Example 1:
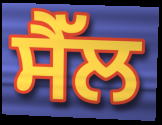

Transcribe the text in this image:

ਸੈੱਲ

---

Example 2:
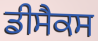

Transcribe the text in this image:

ਡੀਸੈਕਸ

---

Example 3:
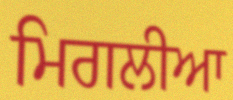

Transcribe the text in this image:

ਮਿਗਲੀਆ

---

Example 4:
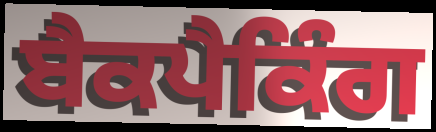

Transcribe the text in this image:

ਬੈਕਪੈਕਿੰਗ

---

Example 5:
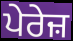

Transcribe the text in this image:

ਪੇਰੇਜ਼